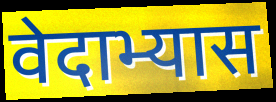
वेदाभ्यास